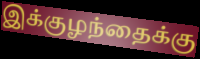
இக்குழந்தைக்கு